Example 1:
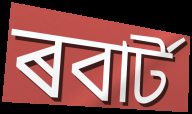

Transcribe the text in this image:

ৰবাৰ্ট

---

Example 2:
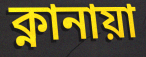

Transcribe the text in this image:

ক্নানায়া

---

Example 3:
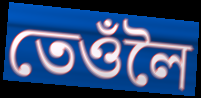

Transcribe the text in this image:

তেওঁলৈ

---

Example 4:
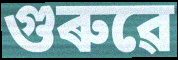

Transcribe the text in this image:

গুৰুৱে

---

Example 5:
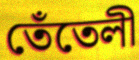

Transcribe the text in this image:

তেঁতেলী